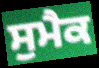
ਸੁਮੈਕ